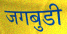
जगबुडी